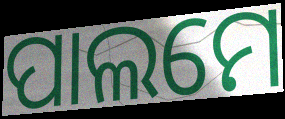
ପାଲମେ